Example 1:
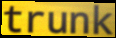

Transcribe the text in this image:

trunk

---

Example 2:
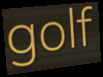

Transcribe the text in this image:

golf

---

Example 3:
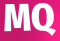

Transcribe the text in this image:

MQ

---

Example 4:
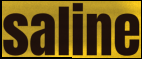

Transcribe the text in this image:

saline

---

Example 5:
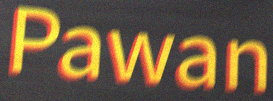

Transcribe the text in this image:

Pawan